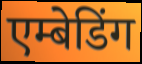
एम्बेडिंग